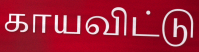
காயவிட்டு